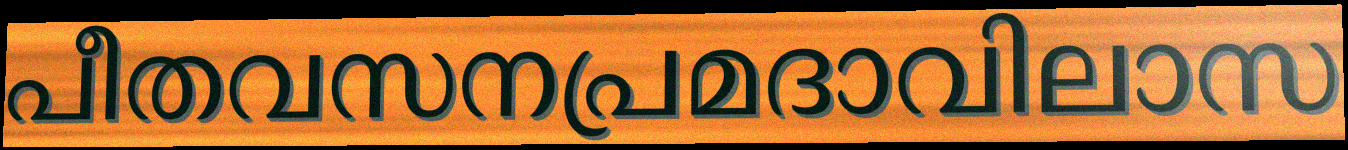
പീതവസനപ്രമദാവിലാസ